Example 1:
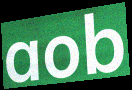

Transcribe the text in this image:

aob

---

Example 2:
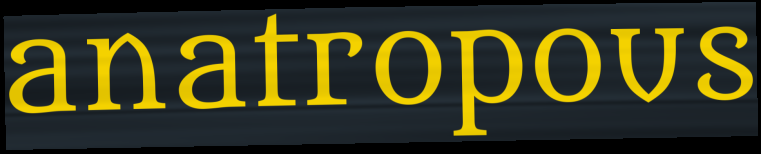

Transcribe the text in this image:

anatropous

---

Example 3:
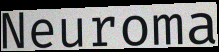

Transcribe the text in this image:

Neuroma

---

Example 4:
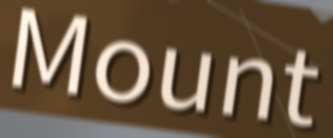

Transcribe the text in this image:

Mount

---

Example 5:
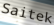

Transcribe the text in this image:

Saitek